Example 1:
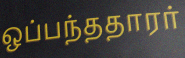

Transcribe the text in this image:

ஒப்பந்ததாரர்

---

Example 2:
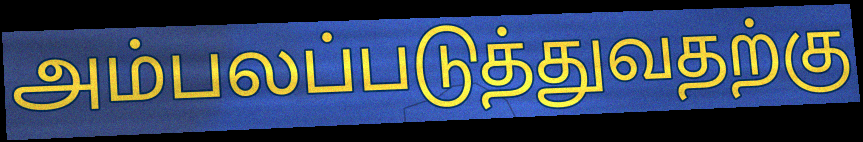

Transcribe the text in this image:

அம்பலப்படுத்துவதற்கு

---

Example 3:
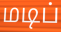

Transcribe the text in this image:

மடிப்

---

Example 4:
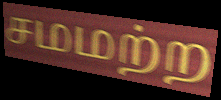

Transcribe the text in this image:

சமமற்ற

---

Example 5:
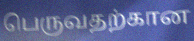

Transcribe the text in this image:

பெருவதற்கான